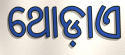
ଥୋଡ଼ାଏ